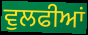
ਵੁਲਫੀਆਂ